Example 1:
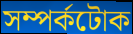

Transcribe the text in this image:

সম্পৰ্কটোক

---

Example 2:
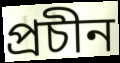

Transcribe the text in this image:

প্ৰচীন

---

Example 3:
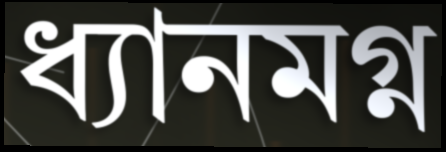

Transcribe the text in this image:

ধ্যানমগ্ন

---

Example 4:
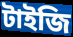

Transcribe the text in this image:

টাইজি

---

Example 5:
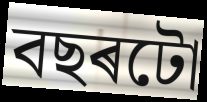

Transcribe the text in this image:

বছৰটো